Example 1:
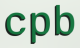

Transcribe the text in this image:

cpb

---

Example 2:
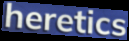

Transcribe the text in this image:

heretics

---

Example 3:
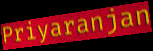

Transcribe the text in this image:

Priyaranjan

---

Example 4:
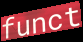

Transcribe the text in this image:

funct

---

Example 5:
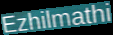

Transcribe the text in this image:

Ezhilmathi